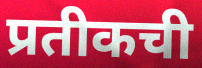
प्रतीकची